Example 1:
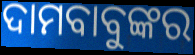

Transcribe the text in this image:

ଦାମବାବୁଙ୍କର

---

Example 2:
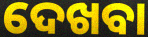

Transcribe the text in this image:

ଦେଖବା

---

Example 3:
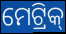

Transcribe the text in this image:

ମେଟ୍ରିକ୍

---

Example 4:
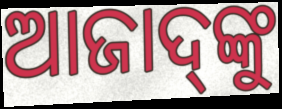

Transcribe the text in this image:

ଆଜାଦ୍‌ଙ୍କୁ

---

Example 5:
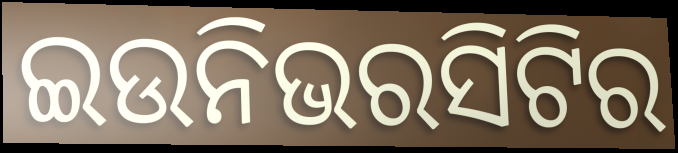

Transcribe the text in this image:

ଇଉନିଭରସିଟିର